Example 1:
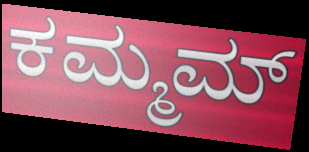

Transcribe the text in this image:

ಕಮ್ಮಮ್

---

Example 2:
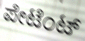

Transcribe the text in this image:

ಪೇಟೆಂಟ್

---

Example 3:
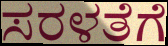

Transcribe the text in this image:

ಸರಳತೆಗೆ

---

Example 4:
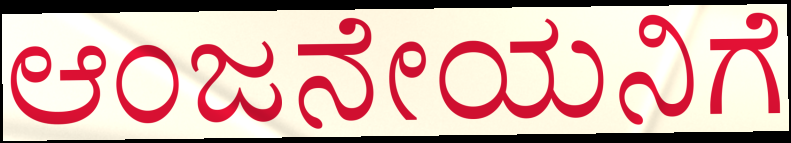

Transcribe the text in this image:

ಆಂಜನೇಯನಿಗೆ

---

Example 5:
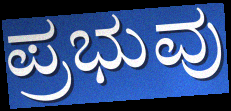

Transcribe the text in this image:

ಪ್ರಭುವು